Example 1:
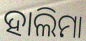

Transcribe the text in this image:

ହାଲିମା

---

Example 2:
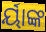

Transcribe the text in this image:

ର୍ୟାଙ୍କ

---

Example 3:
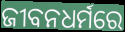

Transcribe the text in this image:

ଜୀବନଧର୍ମରେ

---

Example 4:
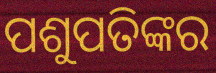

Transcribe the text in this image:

ପଶୁପତିଙ୍କର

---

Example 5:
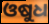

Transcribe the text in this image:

ଓଷୁଧ